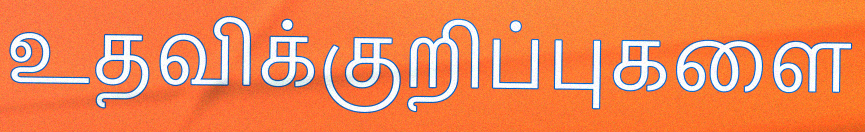
உதவிக்குறிப்புகளை